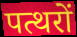
पत्थरों